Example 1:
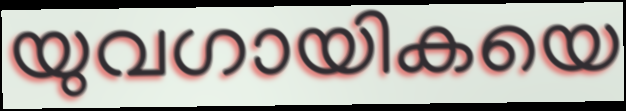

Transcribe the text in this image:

യുവഗായികയെ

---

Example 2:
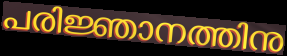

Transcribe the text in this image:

പരിജ്ഞാനത്തിനു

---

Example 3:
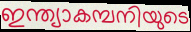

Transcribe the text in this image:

ഇന്ത്യാകമ്പനിയുടെ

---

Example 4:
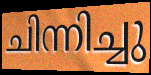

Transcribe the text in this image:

ചിന്നിച്ചു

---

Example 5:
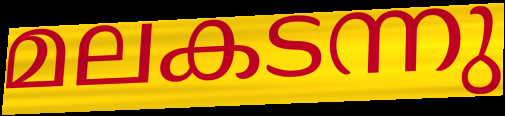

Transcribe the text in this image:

മലകടന്നു